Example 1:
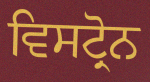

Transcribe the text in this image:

ਵਿਸਟ੍ਰੋਨ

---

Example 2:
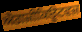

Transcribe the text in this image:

ਐਗਜ਼ੀਕਿਊਟਵਜ਼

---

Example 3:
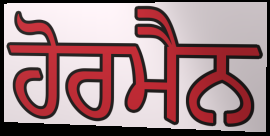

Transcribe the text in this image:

ਹੋਰਮੈਨ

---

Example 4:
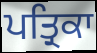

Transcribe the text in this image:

ਪਤ੍ਰਿਕਾ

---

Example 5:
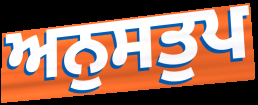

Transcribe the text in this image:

ਅਨੁਸਤੁਪ